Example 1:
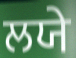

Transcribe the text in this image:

ਲਯੇ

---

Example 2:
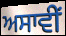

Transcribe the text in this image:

ਅਸਾਵੀਂ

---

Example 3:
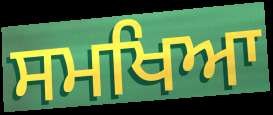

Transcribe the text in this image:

ਸਮਖਿਆ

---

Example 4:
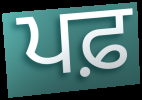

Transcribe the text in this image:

ਪਫ਼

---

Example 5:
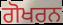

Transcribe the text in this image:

ਗੋਖਰਨ